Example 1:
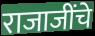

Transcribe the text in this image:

राजाजींचे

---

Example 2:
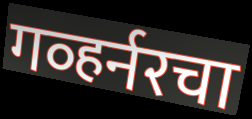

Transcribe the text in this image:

गव्हर्नरचा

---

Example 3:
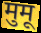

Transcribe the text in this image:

मुमू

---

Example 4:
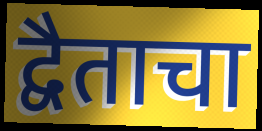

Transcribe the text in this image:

द्वैताचा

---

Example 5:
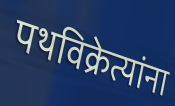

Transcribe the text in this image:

पथविक्रेत्यांना